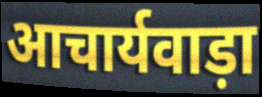
आचार्यवाड़ा